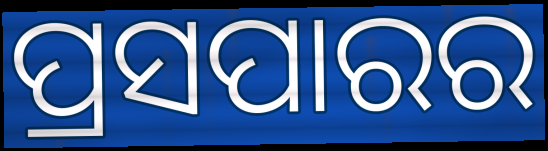
ପ୍ରସପାରର